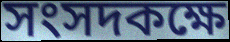
সংসদকক্ষে